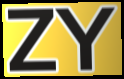
ZY